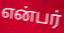
என்பர்